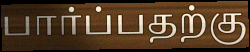
பார்ப்பதற்கு